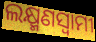
ଲକ୍ଷ୍ମଣସ୍ଵାମୀ